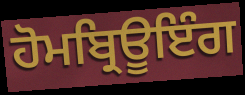
ਹੋਮਬ੍ਰਿਊਇੰਗ